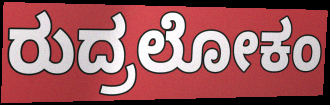
ರುದ್ರಲೋಕಂ